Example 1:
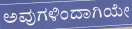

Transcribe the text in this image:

ಅವುಗಳಿಂದಾಗಿಯೇ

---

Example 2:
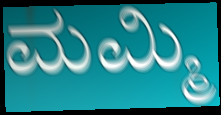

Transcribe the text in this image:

ಮಮ್ಮಿ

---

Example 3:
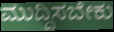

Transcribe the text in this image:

ಮುದ್ದಿಸಬೇಕು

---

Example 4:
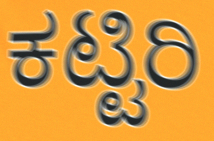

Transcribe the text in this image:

ಕಟ್ಟಿರಿ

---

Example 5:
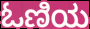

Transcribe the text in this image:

ಓಣಿಯ